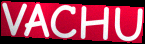
VACHU